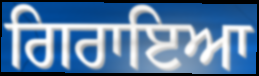
ਗਿਰਾਇਆ